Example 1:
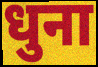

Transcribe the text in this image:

धुना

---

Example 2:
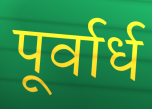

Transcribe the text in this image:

पूर्वार्ध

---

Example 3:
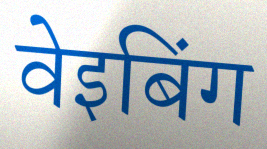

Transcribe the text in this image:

वेइबिंग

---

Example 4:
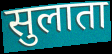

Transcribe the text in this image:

सुलाता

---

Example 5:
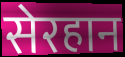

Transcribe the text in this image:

सेरहान